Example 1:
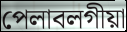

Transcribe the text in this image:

পেলাবলগীয়া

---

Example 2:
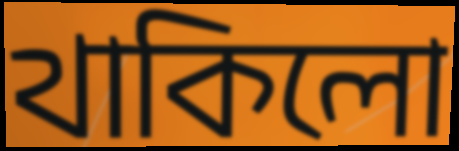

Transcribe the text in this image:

থাকিলো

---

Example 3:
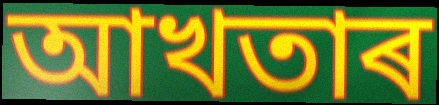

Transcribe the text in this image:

আখতাৰ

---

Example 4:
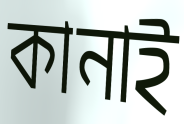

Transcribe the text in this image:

কানাই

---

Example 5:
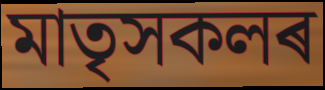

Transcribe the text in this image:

মাতৃসকলৰ